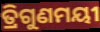
ତ୍ରିଗୁଣମୟୀ